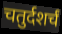
चतुर्दशर्चं